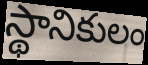
స్థానికులం